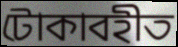
টোকাবহীত